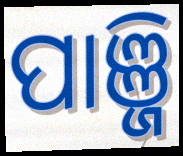
ପାଞ୍ଜି